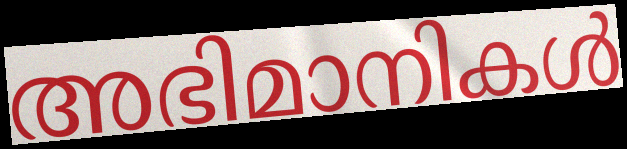
അഭിമാനികൾ